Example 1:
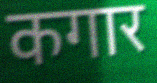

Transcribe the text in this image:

कगार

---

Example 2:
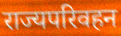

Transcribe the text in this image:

राज्यपरिवहन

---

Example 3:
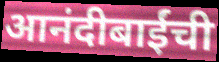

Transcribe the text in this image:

आनंदीबाईंची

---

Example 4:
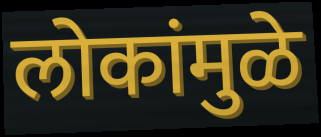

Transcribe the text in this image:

लोकांमुळे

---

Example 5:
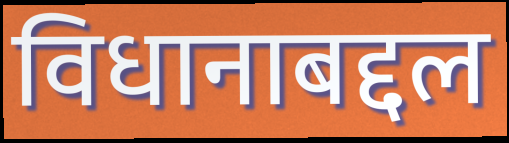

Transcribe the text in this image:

विधानाबद्दल